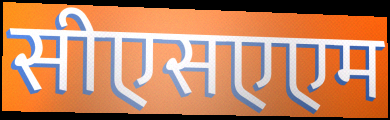
सीएसएएम